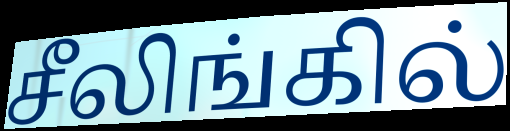
சீலிங்கில்